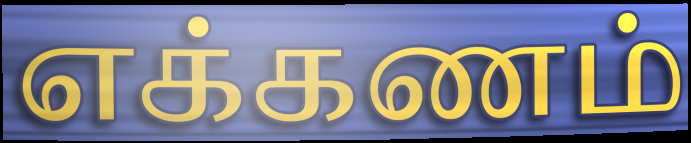
எக்கணம்